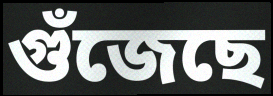
গুঁজেছে